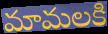
మామలకి